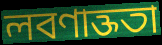
লবণাক্ততা